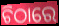
ଚିଠାରେ